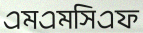
এমএমসিএফ